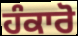
ਹੰਕਾਰੋ